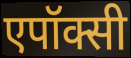
एपॉक्सी